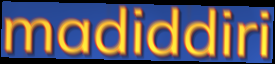
madiddiri